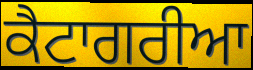
ਕੈਟਾਗਰੀਆ